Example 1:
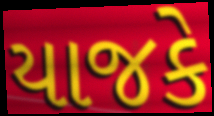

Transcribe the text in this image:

યાજકે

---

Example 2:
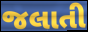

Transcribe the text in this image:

જલાતી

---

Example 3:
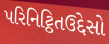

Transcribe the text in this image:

પરિનિટ્ઠિતઉદ્દેસો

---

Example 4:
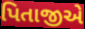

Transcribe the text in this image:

પિતાજીએ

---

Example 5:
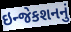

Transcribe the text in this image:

ઇન્જેકશનનું